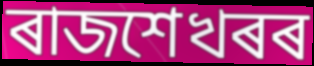
ৰাজশেখৰৰ